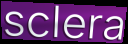
sclera